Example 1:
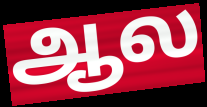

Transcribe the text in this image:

ஆல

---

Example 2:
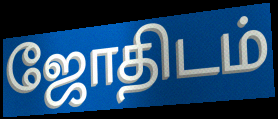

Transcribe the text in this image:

ஜோதிடம்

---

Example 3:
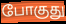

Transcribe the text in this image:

போகுது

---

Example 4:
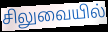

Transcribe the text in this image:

சிலுவையில்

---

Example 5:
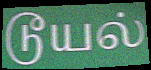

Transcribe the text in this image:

டூயல்